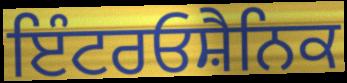
ਇੰਟਰਓਸ਼ੈਨਿਕ